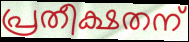
പ്രതീക്ഷതന്